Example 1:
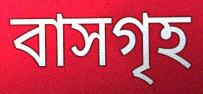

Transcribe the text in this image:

বাসগৃহ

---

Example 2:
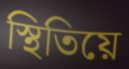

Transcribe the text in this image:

স্থিতিয়ে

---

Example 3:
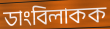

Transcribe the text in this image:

ডাংবিলাকক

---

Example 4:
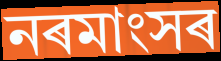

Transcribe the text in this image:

নৰমাংসৰ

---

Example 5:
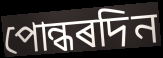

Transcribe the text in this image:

পোন্ধৰদিন